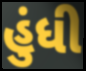
હુંધી